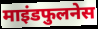
माइंडफुलनेस